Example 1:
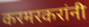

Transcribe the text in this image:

करमरकरांनी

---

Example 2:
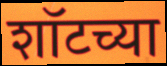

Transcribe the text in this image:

शॉटच्या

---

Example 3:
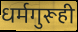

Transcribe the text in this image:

धर्मगुरूही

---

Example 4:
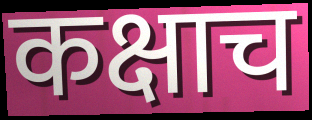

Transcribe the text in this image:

कक्षाच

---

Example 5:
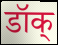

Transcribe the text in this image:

डॉक्